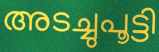
അടച്ചുപൂട്ടി